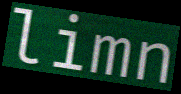
limn